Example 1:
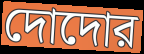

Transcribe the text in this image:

দোদোর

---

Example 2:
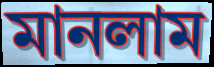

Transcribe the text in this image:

মানলাম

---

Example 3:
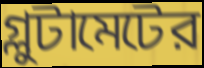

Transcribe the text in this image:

গ্লুটামেটের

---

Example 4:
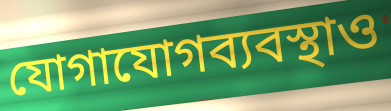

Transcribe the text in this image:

যোগাযোগব্যবস্থাও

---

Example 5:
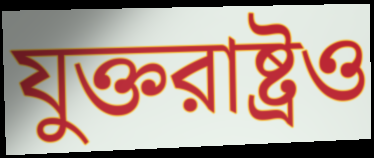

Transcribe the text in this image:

যুক্তরাষ্ট্রও